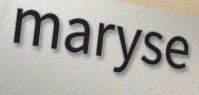
maryse